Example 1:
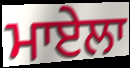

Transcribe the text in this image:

ਮਾਏਲਾ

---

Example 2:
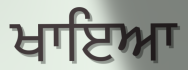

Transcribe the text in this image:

ਖਾਇਆ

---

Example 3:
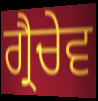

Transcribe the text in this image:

ਗ੍ਰੈਚੇਵ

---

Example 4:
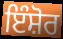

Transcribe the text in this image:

ਇੰਸ਼ੋਰ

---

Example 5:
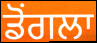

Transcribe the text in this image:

ਡੋਂਗਲਾ